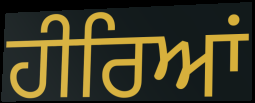
ਹੀਰਿਆਂ